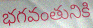
భగవంతునికి